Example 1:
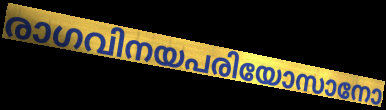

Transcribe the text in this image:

രാഗവിനയപരിയോസാനോ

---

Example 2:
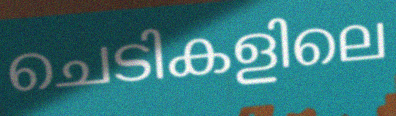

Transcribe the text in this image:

ചെടികളിലെ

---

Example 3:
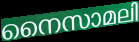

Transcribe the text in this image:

നൈസാമലി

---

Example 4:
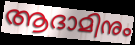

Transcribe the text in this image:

ആദാമിനും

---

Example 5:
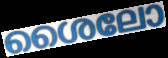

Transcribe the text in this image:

ശൈലോ